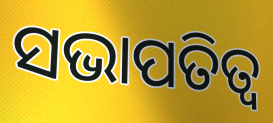
ସଭାପତିତ୍ବ